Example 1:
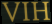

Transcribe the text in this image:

VIH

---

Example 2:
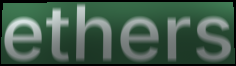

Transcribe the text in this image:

ethers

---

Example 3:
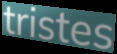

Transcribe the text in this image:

tristes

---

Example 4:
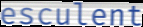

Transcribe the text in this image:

esculent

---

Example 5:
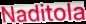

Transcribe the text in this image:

Naditola